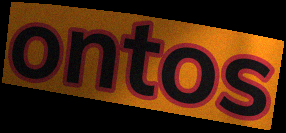
ontos